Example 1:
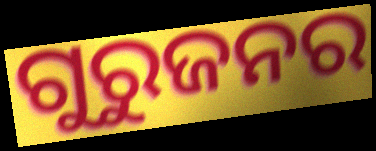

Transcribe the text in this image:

ଗୁରୁଜନର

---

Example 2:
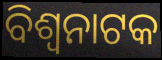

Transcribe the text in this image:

ବିଶ୍ୱନାଟକ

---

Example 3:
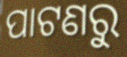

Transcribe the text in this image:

ପାଟଣରୁ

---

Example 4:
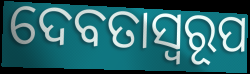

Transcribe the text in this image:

ଦେବତାସ୍ୱରୂପ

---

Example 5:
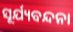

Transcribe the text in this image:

ସୂର୍ଯ୍ୟବନ୍ଦନା